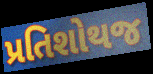
પ્રતિશોથજ